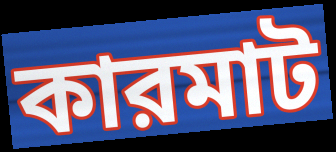
কারমাট